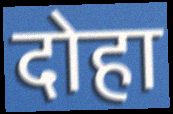
दोहा